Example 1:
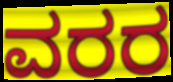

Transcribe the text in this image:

ವರರ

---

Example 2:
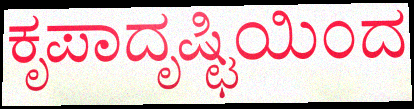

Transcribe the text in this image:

ಕೃಪಾದೃಷ್ಟಿಯಿಂದ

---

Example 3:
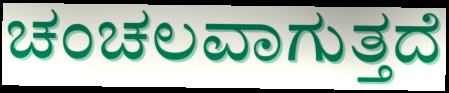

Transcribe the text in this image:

ಚಂಚಲವಾಗುತ್ತದೆ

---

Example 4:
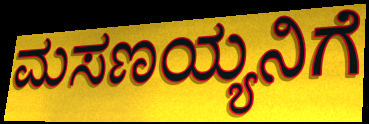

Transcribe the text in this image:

ಮಸಣಯ್ಯನಿಗೆ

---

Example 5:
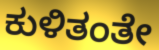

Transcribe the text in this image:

ಕುಳಿತಂತೇ